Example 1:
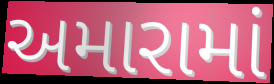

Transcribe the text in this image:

અમારામાં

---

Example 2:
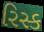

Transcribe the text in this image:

રિસ્ક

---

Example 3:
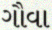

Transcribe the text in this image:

ગૌવા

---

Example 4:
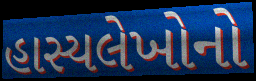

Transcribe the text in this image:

હાસ્યલેખોનો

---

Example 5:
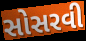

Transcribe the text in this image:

સોસરવી